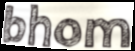
bhom